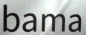
bama